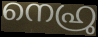
നെഹ്രു